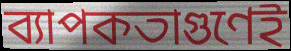
ব্যাপকতাগুণেই